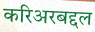
करिअरबद्दल